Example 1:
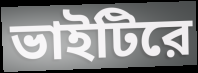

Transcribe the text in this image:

ভাইটিরে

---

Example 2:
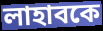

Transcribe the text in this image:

লাহাবকে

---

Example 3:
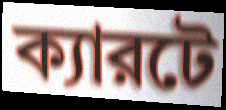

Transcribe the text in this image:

ক্যারটে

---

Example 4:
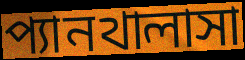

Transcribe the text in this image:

প্যানথালাসা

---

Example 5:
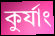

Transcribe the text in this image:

কুর্যাং